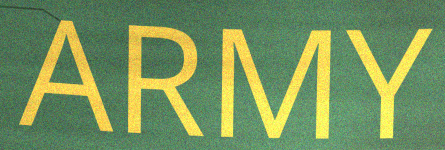
ARMY